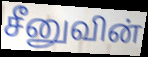
சீனுவின்